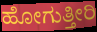
ಹೋಗುತ್ತೀರಿ